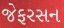
જેફરસન